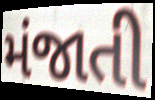
મંજાતી